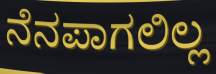
ನೆನಪಾಗಲಿಲ್ಲ